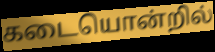
கடையொன்றில்